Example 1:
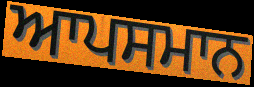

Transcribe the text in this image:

ਆਪਸਮਾਨ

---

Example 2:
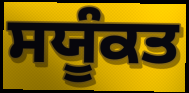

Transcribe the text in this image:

ਸਯੂੰਕਤ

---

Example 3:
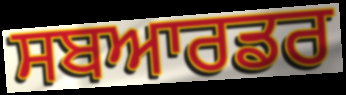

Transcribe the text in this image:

ਸਬਆਰਡਰ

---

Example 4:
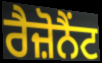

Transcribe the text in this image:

ਰੈਜ਼ੋਨੈਂਟ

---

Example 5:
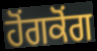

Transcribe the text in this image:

ਹੋਂਗਕੋਂਗ